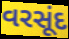
વરસૂંદ